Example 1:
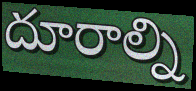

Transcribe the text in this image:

దూరాల్ని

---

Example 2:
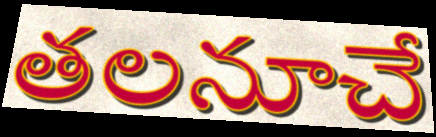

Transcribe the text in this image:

తలనూచే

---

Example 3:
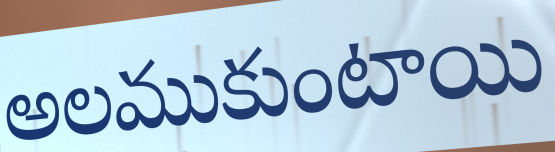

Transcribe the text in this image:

అలముకుంటాయి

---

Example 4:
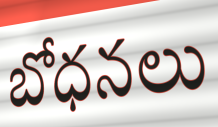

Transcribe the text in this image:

బోధనలు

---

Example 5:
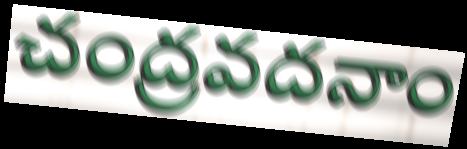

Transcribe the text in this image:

చంద్రవదనాం